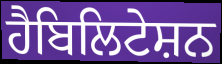
ਹੈਬਿਲਿਟੇਸ਼ਨ